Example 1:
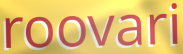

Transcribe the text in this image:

roovari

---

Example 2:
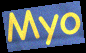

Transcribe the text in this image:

Myo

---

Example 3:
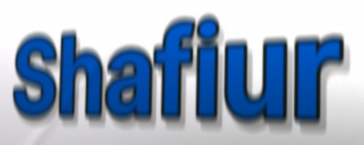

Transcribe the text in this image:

Shafiur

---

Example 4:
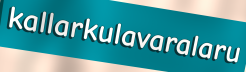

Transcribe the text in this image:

kallarkulavaralaru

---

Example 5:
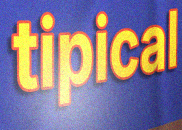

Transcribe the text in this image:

tipical